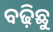
ବଢ଼ିଛୁ